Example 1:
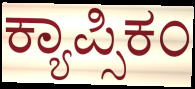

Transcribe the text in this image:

ಕ್ಯಾಪ್ಸಿಕಂ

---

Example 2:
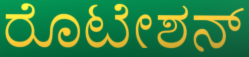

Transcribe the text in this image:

ರೊಟೇಶನ್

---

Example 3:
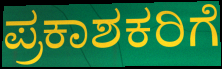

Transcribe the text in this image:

ಪ್ರಕಾಶಕರಿಗೆ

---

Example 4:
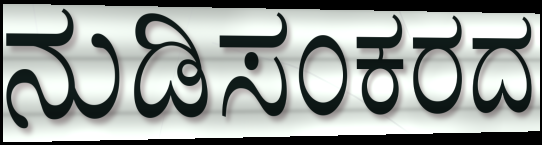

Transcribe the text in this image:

ನುಡಿಸಂಕರದ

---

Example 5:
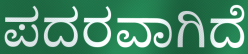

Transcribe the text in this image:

ಪದರವಾಗಿದೆ